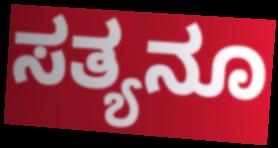
ಸತ್ಯನೂ